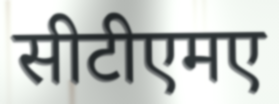
सीटीएमए